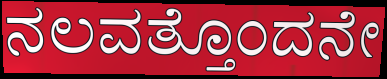
ನಲವತ್ತೊಂದನೇ